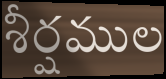
శీర్షముల